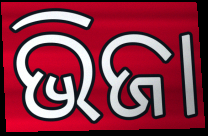
ଭିଜା